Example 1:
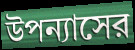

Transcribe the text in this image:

উপন্যাসের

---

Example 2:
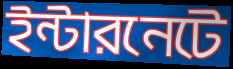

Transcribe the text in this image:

ইন্টারনেটে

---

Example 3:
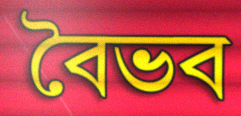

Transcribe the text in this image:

বৈভব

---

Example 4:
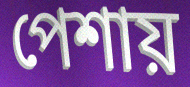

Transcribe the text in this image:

পেশায়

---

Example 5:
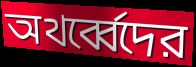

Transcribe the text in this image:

অথর্ব্বেদের